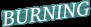
BURNING